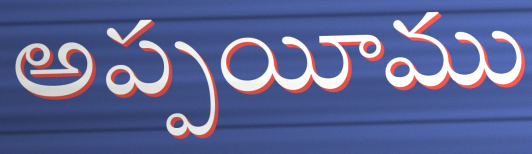
అప్పయీము